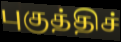
புகுத்திச்